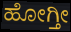
ಹೋಗ್ತೀ